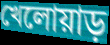
খেলোয়াড়